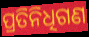
ପ୍ରତିନିଧିଗଣ